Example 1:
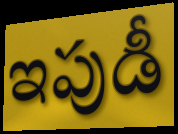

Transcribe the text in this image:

ఇపుడీ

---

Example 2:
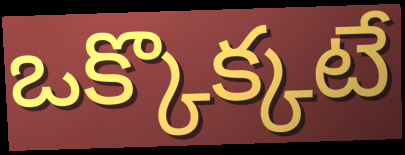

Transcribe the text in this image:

ఒక్కొక్కటే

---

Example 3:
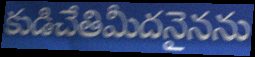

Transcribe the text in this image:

కుడిచేతిమీదనైనను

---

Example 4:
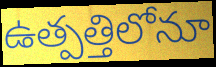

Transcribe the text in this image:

ఉత్పత్తిలోనూ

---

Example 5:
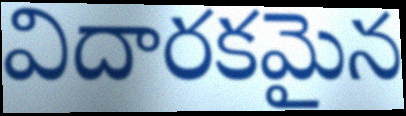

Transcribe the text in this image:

విదారకమైన